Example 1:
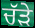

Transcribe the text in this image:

ਚੱੜੇ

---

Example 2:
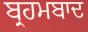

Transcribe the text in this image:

ਬ੍ਰਹਮਬਾਦ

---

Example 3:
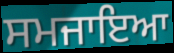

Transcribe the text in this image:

ਸਮਜਾਇਆ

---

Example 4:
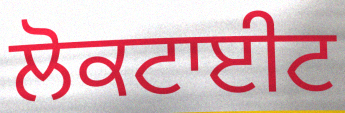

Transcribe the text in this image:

ਲੋਕਟਾਈਟ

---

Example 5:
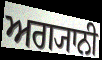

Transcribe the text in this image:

ਅਗ੍ਯਾਨੀ